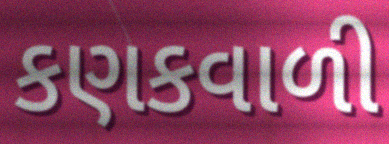
કણકવાળી